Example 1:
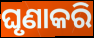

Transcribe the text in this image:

ଘୃଣାକରି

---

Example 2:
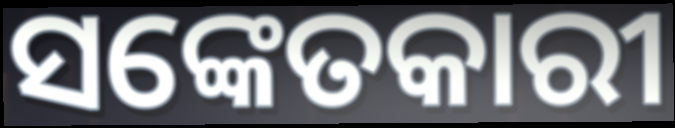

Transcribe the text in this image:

ସଙ୍କେତକାରୀ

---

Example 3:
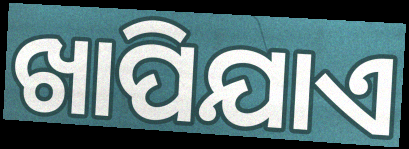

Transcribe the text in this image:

ଖାପିଯାଏ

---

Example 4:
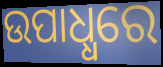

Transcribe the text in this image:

ଉପାଧ୍ଧରେ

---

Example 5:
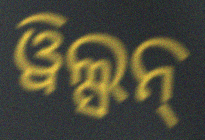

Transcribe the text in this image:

ୱିଲ୍ସନ୍